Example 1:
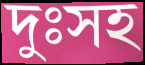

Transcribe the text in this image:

দুঃসহ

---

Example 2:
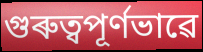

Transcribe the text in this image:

গুৰুত্বপূৰ্ণভাৱে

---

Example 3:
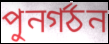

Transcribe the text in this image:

পুনৰ্গঠন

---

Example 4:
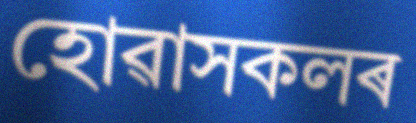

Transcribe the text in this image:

হোৱাসকলৰ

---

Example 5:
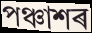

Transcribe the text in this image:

পঞ্চাশৰ